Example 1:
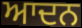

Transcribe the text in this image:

ਆਦਨ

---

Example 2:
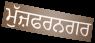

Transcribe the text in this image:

ਮੁੱਜ਼ਫਰਨਗਰ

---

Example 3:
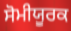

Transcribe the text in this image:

ਸੋਮੀਯੂਰਕ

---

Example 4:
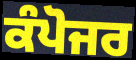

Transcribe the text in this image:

ਕੰਪੋਜਰ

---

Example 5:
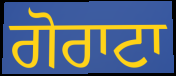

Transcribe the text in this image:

ਗੋਰਾਟਾ